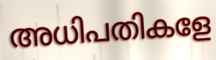
അധിപതികളേ